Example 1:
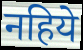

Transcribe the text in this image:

नहिये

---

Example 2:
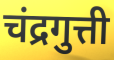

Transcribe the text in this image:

चंद्रगुत्ती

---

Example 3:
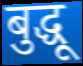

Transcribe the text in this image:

बुद्धू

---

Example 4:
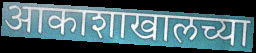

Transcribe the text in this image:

आकाशाखालच्या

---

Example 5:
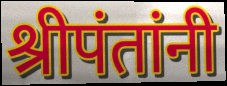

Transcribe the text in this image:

श्रीपंतांनी